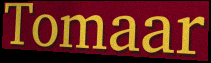
Tomaar